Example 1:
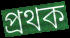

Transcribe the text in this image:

প্রথক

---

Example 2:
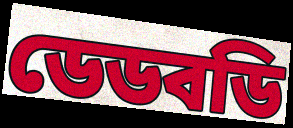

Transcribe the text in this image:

ডেডবডি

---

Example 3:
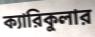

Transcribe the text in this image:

ক্যারিকুলার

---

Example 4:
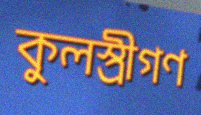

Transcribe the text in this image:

কুলস্ত্রীগণ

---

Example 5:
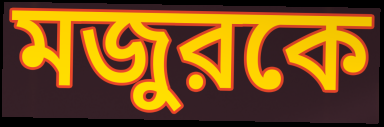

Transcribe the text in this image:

মজুরকে